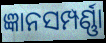
ଜ୍ଞାନସମ୍ପର୍ଣ୍ଣା